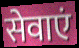
सेवाएं